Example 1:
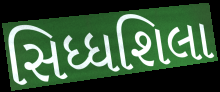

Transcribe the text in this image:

સિધ્ધશિલા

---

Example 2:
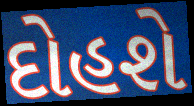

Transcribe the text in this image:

દોહશે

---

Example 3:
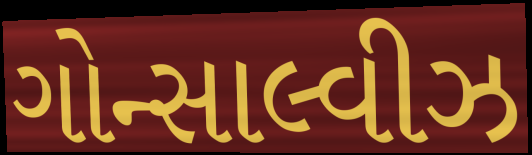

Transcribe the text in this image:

ગોન્સાલ્વીઝ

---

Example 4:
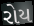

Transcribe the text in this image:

રોય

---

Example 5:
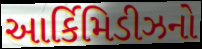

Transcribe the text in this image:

આર્કિમિડીઝનો